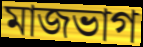
মাজভাগ